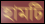
হামটি